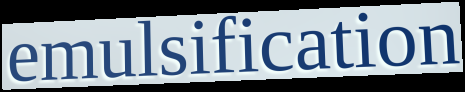
emulsification